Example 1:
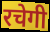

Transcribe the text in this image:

रचेगी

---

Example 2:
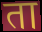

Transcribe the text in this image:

ता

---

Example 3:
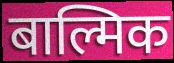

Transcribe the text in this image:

बाल्मिक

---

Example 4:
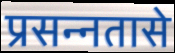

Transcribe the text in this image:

प्रसन्नतासे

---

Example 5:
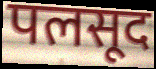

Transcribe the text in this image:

पलसूद